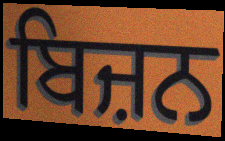
ਬਿਜ਼ਨ